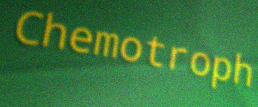
Chemotroph